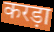
करड़ा